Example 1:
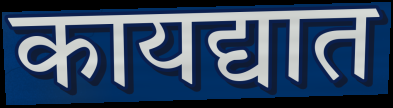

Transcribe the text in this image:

कायद्यात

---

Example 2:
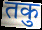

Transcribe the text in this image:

तकु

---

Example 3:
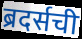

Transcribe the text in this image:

ब्रदर्सची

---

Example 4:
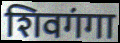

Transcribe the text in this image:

शिवगंगा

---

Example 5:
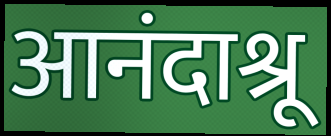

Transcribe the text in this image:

आनंदाश्रू